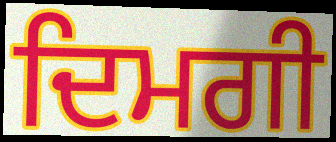
ਦਿਮਗੀ